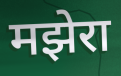
मझेरा